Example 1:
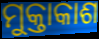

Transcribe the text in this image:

ମୁକ୍ତାକାଶ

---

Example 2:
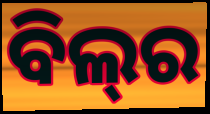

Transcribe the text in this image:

ବିଲ୍‌ର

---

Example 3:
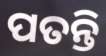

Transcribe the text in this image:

ପତନ୍ତି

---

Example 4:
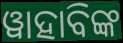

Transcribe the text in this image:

ୱାହାବିଙ୍କ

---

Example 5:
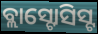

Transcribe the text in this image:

ବ୍ଲାସ୍ଟୋସିସ୍ଟ